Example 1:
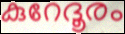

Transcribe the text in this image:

കുറേദൂരം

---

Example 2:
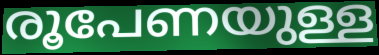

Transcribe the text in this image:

രൂപേണയുള്ള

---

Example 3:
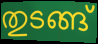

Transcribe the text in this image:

തുടങ്ങ്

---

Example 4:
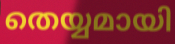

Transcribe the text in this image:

തെയ്യമായി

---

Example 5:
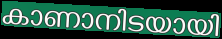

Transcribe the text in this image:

കാണാനിടയായി